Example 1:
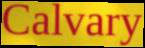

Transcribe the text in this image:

Calvary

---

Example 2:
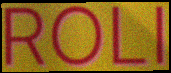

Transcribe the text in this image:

ROLI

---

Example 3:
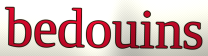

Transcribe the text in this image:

bedouins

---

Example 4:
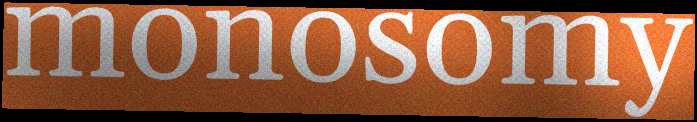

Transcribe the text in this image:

monosomy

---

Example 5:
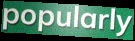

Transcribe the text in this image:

popularly